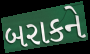
બરાકને